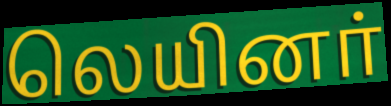
லெயினர்